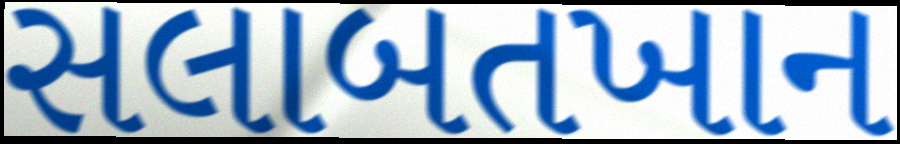
સલાબતખાન